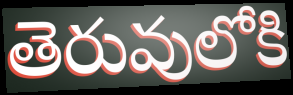
తెరువులోకి